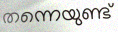
തന്നെയുണ്ട്